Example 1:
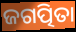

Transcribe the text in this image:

ଜଗତ୍ପିତା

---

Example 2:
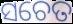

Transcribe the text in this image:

ସଚେତ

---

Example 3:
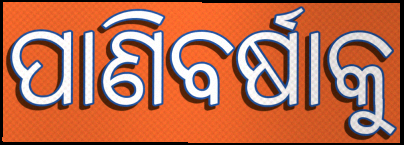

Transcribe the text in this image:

ପାଣିବର୍ଷାକୁ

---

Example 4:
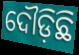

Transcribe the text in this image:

ଦୌଡ଼ିଛି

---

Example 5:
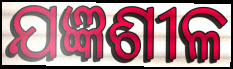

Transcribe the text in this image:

ଯଜ୍ଞଶୀଳ